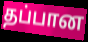
தப்பான